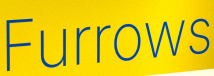
Furrows